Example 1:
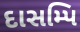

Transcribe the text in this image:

દાસમ્પિ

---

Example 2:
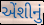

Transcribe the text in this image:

એંશીનું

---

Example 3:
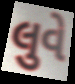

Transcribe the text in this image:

લુવે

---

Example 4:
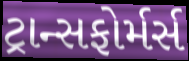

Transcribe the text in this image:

ટ્રાન્સફોર્મર્સ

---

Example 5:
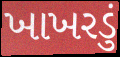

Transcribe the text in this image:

ખાખરડું